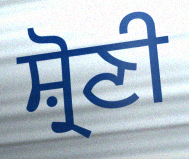
ਸ਼੍ਰੋਣੀ